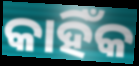
କାହିଁକ